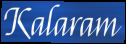
Kalaram